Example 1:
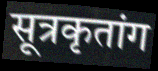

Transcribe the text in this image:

सूत्रकृतांग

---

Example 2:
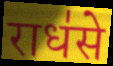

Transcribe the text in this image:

राध॑से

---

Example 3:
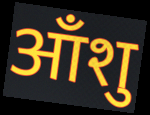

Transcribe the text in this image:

आँशु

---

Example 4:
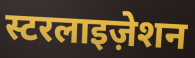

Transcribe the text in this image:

स्टरलाइज़ेशन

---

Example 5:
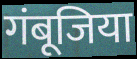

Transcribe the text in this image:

गंबूजिया